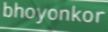
bhoyonkor